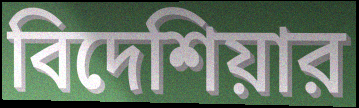
বিদেশিয়ার